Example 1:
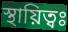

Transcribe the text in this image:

স্থায়িত্বঃ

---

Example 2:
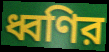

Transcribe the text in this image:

ধ্বণির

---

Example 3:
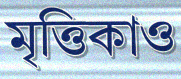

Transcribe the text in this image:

মৃত্তিকাও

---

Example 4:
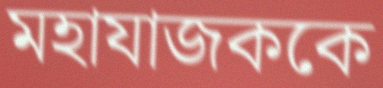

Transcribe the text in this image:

মহাযাজককে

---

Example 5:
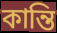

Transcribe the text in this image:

কান্তি